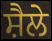
ਸ਼ੈਲੇ